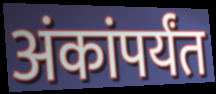
अंकांपर्यंत